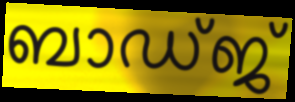
ബാഡ്ജ്